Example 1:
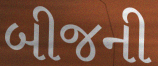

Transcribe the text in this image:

બીજની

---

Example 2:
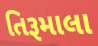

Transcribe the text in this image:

તિરૂમાલા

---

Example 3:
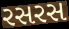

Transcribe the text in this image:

રસરસ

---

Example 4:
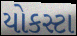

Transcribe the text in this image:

યોકસ્ટા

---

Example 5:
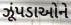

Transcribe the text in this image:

ઝૂંપડાઓને